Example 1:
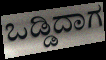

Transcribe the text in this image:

ಒಡ್ಡಿದಾಗ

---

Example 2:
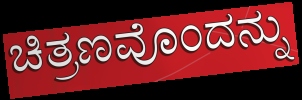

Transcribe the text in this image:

ಚಿತ್ರಣವೊಂದನ್ನು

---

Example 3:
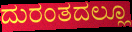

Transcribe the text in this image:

ದುರಂತದಲ್ಲೂ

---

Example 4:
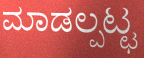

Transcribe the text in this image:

ಮಾಡಲ್ಪಟ್ಟ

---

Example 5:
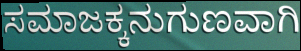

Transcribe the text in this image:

ಸಮಾಜಕ್ಕನುಗುಣವಾಗಿ